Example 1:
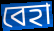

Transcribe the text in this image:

বেহা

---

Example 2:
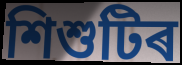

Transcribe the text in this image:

শিশুটিৰ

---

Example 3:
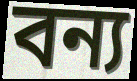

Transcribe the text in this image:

বন্য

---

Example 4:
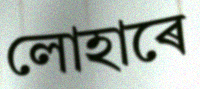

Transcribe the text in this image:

লোহাৰে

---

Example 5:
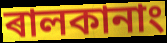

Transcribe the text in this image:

ৰালকানাং